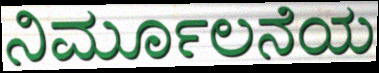
ನಿರ್ಮೂಲನೆಯ